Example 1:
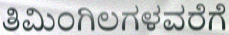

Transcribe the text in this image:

ತಿಮಿಂಗಿಲಗಳವರೆಗೆ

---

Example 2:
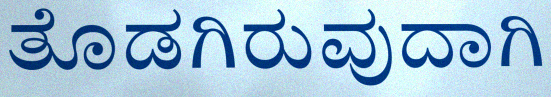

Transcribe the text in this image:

ತೊಡಗಿರುವುದಾಗಿ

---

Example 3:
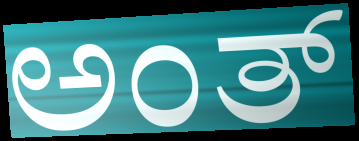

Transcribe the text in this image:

ಅಂತ್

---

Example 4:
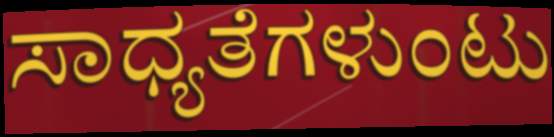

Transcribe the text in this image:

ಸಾಧ್ಯತೆಗಳುಂಟು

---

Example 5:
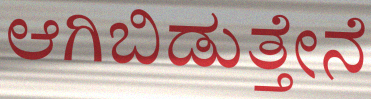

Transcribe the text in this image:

ಆಗಿಬಿಡುತ್ತೇನೆ